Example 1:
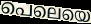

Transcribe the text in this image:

പെലെയെ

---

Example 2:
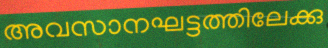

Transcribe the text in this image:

അവസാനഘട്ടത്തിലേക്കു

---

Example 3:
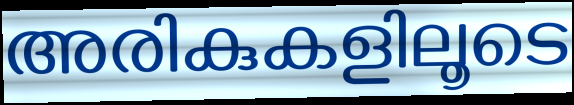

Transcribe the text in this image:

അരികുകളിലൂടെ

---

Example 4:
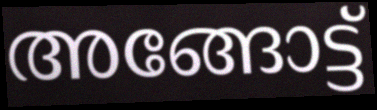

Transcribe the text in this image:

അങ്ങോട്ട്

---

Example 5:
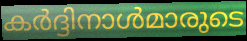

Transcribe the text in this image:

കർദ്ദിനാൾമാരുടെ